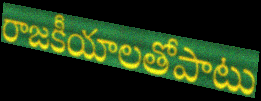
రాజకీయాలతోపాటు